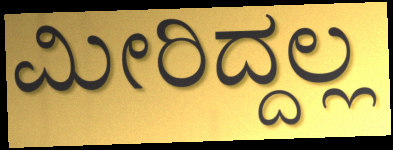
ಮೀರಿದ್ದಲ್ಲ